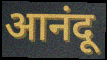
आनंदू